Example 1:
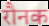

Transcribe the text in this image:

रौनक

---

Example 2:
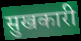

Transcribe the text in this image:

सुखकारी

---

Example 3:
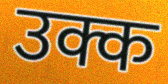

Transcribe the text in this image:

उक्क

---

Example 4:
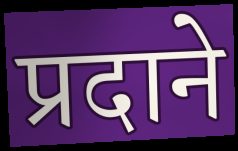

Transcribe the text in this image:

प्रदाने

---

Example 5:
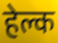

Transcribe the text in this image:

हेल्क